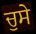
ਚੁਸੇ